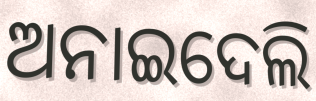
ଅନାଇଦେଲି